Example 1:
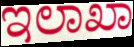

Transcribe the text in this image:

ಇಲಾಖಾ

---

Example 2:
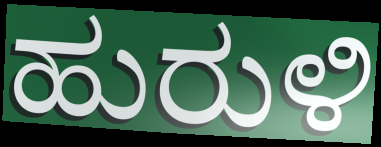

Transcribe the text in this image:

ಹುರುಳಿ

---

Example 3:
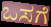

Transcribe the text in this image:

ಒಸಗೆ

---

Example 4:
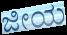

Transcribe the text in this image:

ಜೀಯ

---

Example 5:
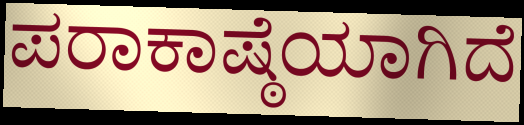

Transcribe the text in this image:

ಪರಾಕಾಷ್ಠೆಯಾಗಿದೆ